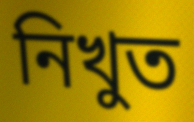
নিখুত